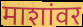
माशांवर